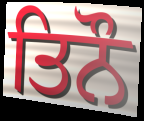
ਤਿਨੌ